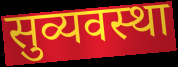
सुव्यवस्था